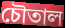
চৌতাল